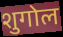
शुगोल